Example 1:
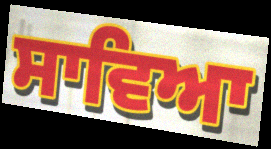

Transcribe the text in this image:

ਸਾਵਿਆ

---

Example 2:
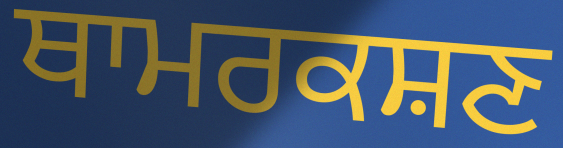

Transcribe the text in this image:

ਥਾਮਰਕਸ਼ਣ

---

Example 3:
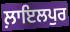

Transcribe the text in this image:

ਲ਼ਾਇਲਪੁਰ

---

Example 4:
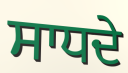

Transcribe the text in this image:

ਸਾਧਦੇ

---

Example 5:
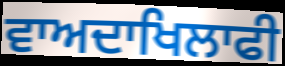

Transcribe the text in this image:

ਵਾਅਦਾਖਿਲਾਫੀ